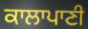
ਕਾਲਾਪਾਣੀ